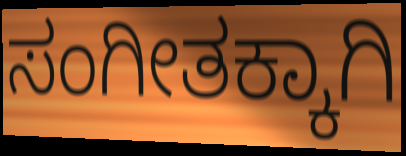
ಸಂಗೀತಕ್ಕಾಗಿ